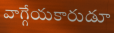
వాగ్గేయకారుడూ